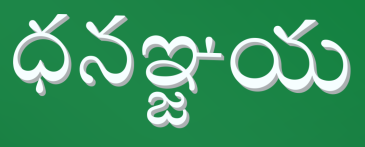
ధనఞ్జయ